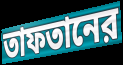
তাফতানের